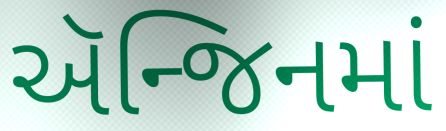
ઍન્જિનમાં